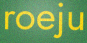
roeju